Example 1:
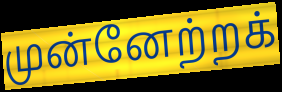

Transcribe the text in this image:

முன்னேற்றக்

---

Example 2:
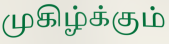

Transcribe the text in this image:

முகிழ்க்கும்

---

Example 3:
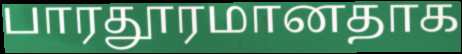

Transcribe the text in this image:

பாரதூரமானதாக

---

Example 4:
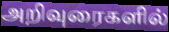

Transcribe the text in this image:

அறிவுரைகளில்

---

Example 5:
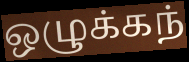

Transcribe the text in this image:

ஒழுக்கந்